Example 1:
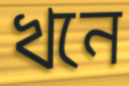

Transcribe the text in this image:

খনে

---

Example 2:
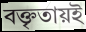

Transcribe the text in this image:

বক্তৃতায়ই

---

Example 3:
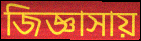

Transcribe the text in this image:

জিজ্ঞাসায়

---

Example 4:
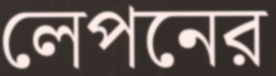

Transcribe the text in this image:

লেপনের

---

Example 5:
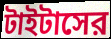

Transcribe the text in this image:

টাইটাসের